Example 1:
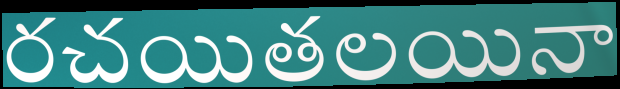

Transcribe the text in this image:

రచయితలయినా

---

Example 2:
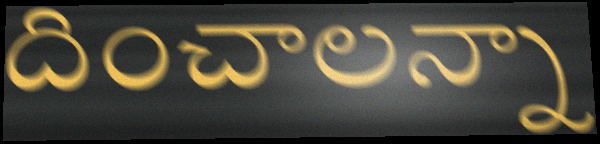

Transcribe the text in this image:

దించాలన్నా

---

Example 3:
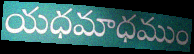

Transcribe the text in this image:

యధమాధముం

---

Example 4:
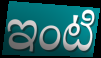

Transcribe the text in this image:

ఇంటి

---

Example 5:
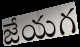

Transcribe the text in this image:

జేయగ